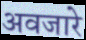
अवजारे